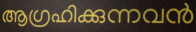
ആഗ്രഹിക്കുന്നവൻ